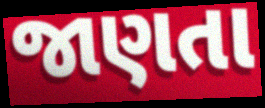
જાણતા